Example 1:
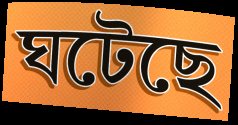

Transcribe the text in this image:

ঘটেছে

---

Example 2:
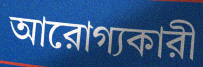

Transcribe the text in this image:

আরোগ্যকারী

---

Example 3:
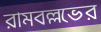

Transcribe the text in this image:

রামবল্লভের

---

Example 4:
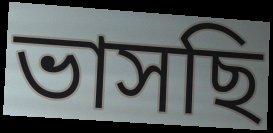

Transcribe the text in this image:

ভাসছি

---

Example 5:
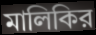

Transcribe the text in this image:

মালিকির